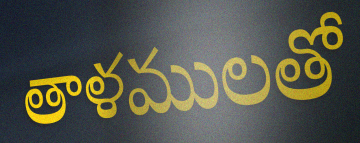
తాళములతో